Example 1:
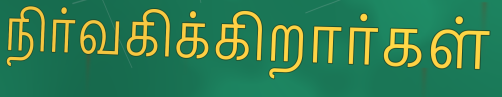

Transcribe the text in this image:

நிர்வகிக்கிறார்கள்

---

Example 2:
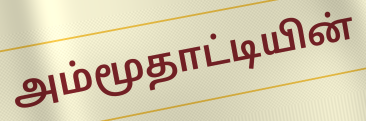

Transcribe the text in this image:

அம்மூதாட்டியின்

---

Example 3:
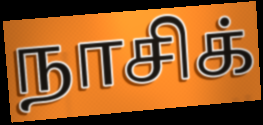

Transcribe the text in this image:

நாசிக்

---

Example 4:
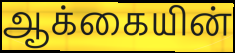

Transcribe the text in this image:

ஆக்கையின்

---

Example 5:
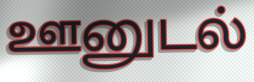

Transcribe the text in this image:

ஊனுடல்